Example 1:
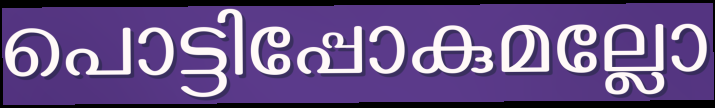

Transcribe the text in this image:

പൊട്ടിപ്പോകുമല്ലോ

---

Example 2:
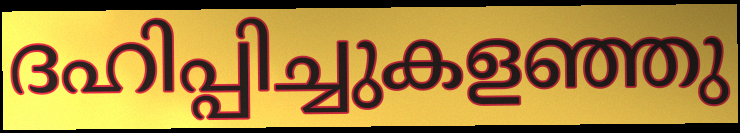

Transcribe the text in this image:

ദഹിപ്പിച്ചുകളഞ്ഞു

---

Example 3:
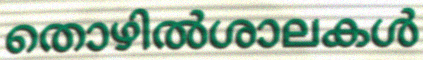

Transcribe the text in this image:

തൊഴിൽശാലകൾ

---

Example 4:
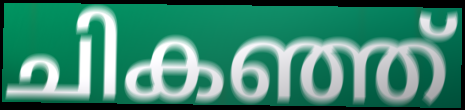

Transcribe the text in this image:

ചികഞ്ഞ്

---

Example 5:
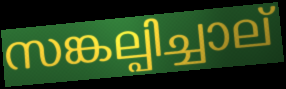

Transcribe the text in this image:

സങ്കല്പിച്ചാല്